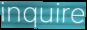
inquire